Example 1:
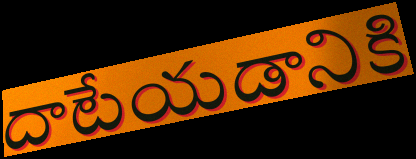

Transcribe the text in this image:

దాటేయడానికి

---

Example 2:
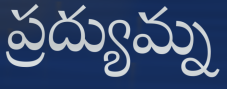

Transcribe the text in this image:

ప్రద్యుమ్న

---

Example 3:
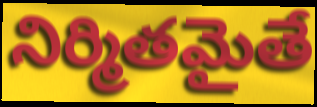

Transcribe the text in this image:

నిర్మితమైతే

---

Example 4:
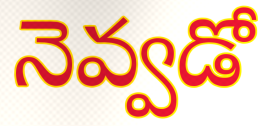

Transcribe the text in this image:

నెవ్వడో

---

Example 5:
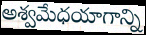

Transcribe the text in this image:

అశ్వమేధయాగాన్ని